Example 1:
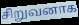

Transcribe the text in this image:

சிறுவனாக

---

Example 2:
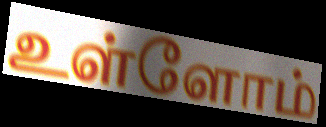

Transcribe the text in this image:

உள்ளோம்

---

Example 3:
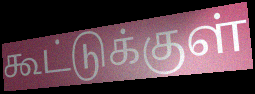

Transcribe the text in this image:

கூட்டுக்குள்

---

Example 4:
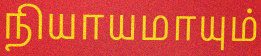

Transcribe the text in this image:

நியாயமாயும்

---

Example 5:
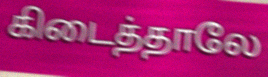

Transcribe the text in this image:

கிடைத்தாலே